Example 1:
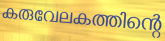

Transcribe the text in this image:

കരുവേലകത്തിന്റെ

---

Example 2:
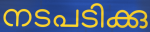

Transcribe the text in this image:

നടപടിക്കു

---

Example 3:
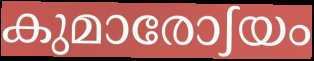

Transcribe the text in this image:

കുമാരോഽയം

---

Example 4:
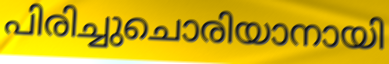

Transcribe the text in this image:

പിരിച്ചുചൊരിയാനായി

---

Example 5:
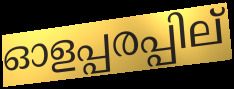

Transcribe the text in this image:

ഓളപ്പരപ്പില്